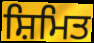
ਸ਼ਿਮਿਤ